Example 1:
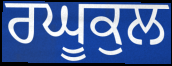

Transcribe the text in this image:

ਰਘੂਕੁਲ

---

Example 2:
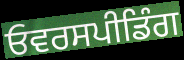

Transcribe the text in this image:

ਓਵਰਸਪੀਡਿੰਗ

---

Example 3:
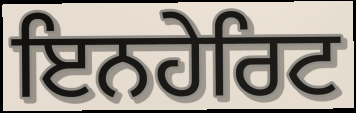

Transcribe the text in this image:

ਇਨਹੇਰਿਟ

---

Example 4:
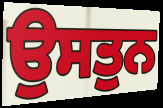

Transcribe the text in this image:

ਉਸਤੁਨ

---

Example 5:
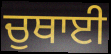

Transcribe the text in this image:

ਚੁਥਾਈ